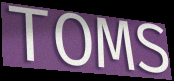
TOMS